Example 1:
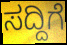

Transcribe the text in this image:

ಸದ್ದಿಗೆ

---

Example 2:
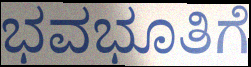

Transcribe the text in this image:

ಭವಭೂತಿಗೆ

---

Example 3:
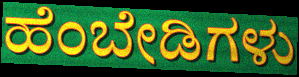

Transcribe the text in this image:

ಹೆಂಬೇಡಿಗಳು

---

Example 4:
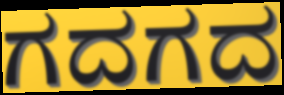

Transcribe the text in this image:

ಗದಗದ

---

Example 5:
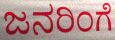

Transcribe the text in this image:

ಜನರಿಂಗೆ